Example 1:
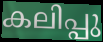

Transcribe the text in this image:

കലിപ്പു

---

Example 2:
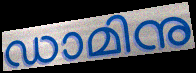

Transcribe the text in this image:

ഡാമിനു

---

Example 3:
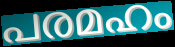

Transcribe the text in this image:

പരമഹം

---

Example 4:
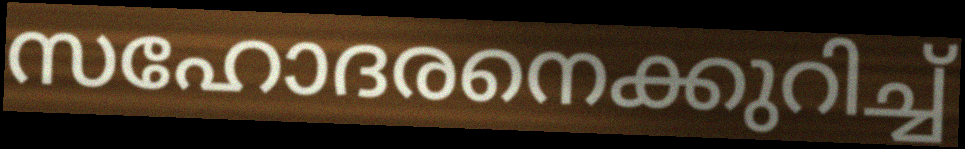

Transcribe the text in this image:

സഹോദരനെക്കുറിച്ച്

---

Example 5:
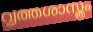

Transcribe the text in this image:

വൃത്തശാസ്ത്രം